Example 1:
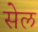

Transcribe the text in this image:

सेल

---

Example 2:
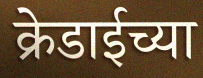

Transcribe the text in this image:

क्रेडाईच्या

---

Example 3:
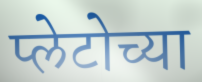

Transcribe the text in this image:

प्लेटोच्या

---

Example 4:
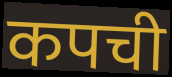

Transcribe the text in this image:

कपची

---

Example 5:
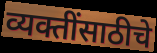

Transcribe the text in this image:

व्यक्तींसाठीचे